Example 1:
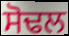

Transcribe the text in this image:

ਸੋਢਲ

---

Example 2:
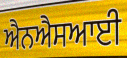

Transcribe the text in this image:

ਐਨਐਸਆਈ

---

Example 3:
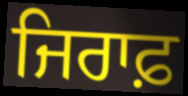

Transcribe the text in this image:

ਜਿਰਾਫ਼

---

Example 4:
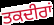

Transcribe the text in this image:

ਤਕਦੀਰਾਂ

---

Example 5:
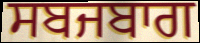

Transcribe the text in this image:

ਸਬਜਬਾਗ